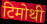
टिमोथी